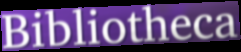
Bibliotheca